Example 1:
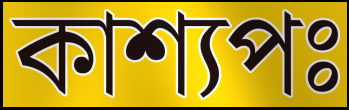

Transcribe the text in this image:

কাশ্যপঃ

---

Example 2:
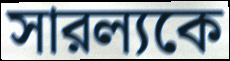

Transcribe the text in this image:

সারল্যকে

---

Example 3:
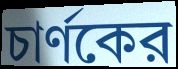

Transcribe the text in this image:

চার্ণকের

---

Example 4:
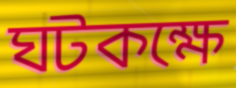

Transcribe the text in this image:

ঘটকক্ষে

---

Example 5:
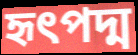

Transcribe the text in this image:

হৃৎপদ্ম